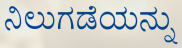
ನಿಲುಗಡೆಯನ್ನು